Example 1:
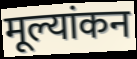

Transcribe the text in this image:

मूल्यांकन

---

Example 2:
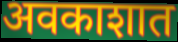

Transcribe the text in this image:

अवकाशात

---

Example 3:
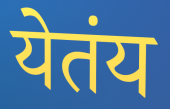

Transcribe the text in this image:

येतंय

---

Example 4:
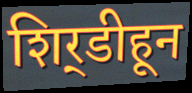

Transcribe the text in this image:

शिर्डीहून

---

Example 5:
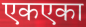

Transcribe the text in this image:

एकएका